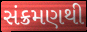
સંક્રમણથી